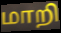
மாறி